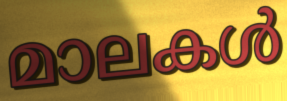
മാലകൾ